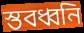
স্তবধ্বনি